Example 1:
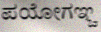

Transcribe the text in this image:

ಪಯೋಗಞ್ಚ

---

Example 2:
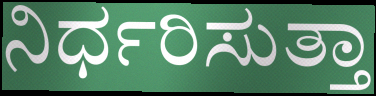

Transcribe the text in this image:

ನಿರ್ಧರಿಸುತ್ತಾ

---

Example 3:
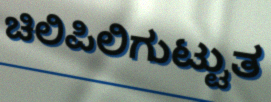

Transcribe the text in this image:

ಚಿಲಿಪಿಲಿಗುಟ್ಟುತ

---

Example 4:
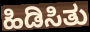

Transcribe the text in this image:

ಹಿಡಿಸಿತು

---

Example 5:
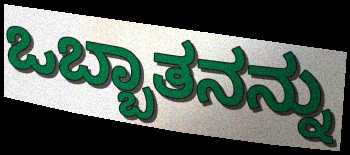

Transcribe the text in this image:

ಒಬ್ಬಾತನನ್ನು